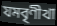
যমবৃণীথা